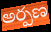
అర్పణ